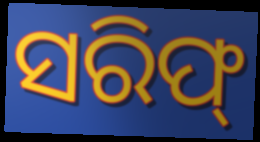
ସରିଫ୍